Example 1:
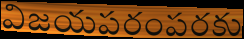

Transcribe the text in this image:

విజయపరంపరకు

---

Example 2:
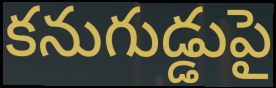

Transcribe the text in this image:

కనుగుడ్డుపై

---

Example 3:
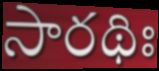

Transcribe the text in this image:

సారథిః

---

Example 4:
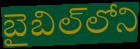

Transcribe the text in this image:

బైబిల్‌లోని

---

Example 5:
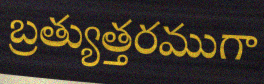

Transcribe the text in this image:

బ్రత్యుత్తరముగా